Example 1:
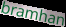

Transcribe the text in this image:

bramhan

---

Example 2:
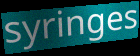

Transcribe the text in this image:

syringes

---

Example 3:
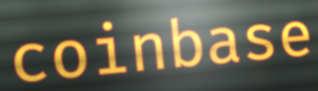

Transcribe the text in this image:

coinbase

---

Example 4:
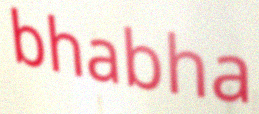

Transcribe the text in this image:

bhabha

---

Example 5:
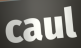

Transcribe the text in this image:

caul